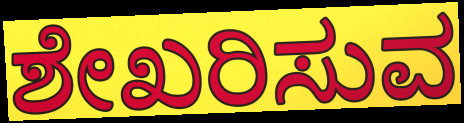
ಶೇಖರಿಸುವ